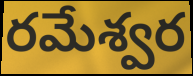
రమేశ్వర